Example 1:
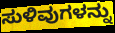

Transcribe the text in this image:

ಸುಳಿವುಗಳನ್ನು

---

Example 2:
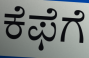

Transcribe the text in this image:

ಕೆಫೆಗೆ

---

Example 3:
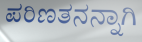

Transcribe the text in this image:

ಪರಿಣತನನ್ನಾಗಿ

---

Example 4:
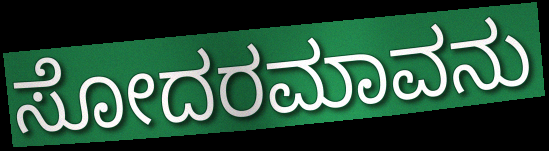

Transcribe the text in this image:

ಸೋದರಮಾವನು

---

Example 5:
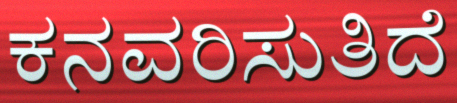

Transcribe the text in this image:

ಕನವರಿಸುತಿದೆ